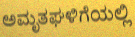
ಅಮೃತಘಳಿಗೆಯಲ್ಲಿ